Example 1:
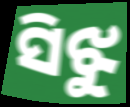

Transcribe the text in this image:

ସିଝୁ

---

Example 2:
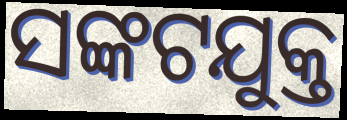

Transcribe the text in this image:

ସଙ୍କଟଯୁକ୍ତ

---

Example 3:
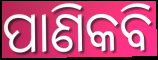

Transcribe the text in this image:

ପାଣିକବି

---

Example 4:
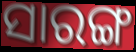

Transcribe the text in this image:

ସାରଙ୍ଗ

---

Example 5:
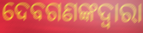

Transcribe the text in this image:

ଦେବଗଣଙ୍କଦ୍ୱାରା